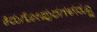
ಕಿರುಗೋಪುರಗಳನ್ನೂ